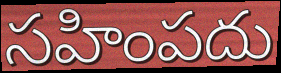
సహింపదు